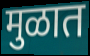
मुळात